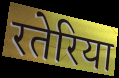
रतेरिया